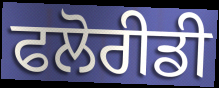
ਫਲੋਰੀਡੀ